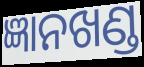
ଜ୍ଞାନଖଣ୍ଡ